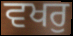
ਵਖਰੁ